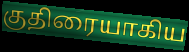
குதிரையாகிய